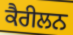
ਕੈਰੀਲਨ